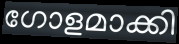
ഗോളമാക്കി